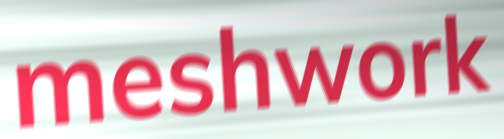
meshwork